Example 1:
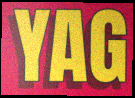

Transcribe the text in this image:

YAG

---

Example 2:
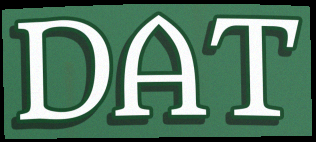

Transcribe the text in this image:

DAT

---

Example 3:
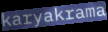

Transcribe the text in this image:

karyakrama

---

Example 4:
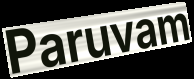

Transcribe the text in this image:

Paruvam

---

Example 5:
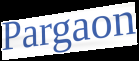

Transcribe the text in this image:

Pargaon